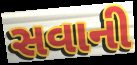
સવાની